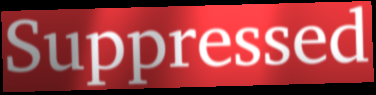
Suppressed